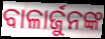
ବାଳାର୍ଜୁନଙ୍କ